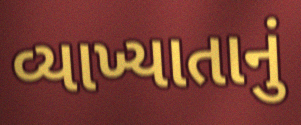
વ્યાખ્યાતાનું